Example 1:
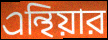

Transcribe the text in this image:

এন্থিয়ার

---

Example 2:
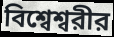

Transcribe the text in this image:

বিশ্বেশ্বরীর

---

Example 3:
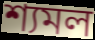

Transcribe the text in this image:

শ্যমল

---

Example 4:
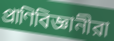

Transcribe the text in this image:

প্রাণিবিজ্ঞানীরা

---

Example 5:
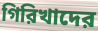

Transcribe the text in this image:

গিরিখাদের